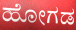
ಹೋಗಡ